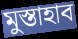
মুস্তাহাব